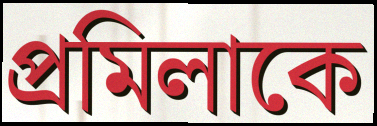
প্রমিলাকে